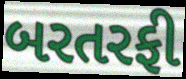
બરતરફી